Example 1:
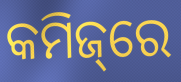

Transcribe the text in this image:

କମିଜ୍‌ରେ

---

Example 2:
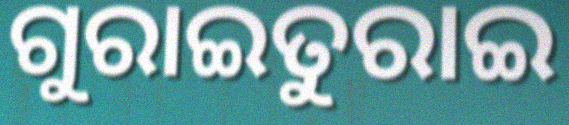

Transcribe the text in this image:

ଗୁରାଇତୁରାଇ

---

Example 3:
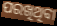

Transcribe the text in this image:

ପରଖିଥିବା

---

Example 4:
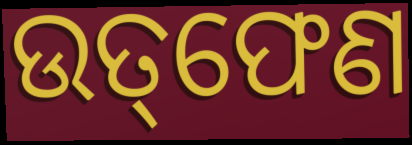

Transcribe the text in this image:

ଉତ୍‌ଫେଣ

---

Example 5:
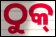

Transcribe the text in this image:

ଠୁକ୍